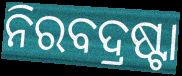
ନିରବଦ୍ରଷ୍ଟା